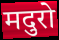
मदुरो